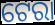
ଟେରା